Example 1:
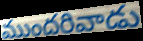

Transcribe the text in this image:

ముందరివాడు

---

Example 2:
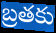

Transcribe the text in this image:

బ్రతకు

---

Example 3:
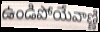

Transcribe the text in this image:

ఉండిపోయేవాణ్ణి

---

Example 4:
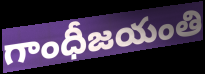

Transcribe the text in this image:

గాంధీజయంతి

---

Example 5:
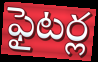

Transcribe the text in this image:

ఫైటర్ల